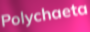
Polychaeta